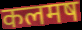
कलमष